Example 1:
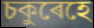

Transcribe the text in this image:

চকুৰেহে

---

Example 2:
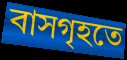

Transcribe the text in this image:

বাসগৃহতে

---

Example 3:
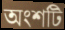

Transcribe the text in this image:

অংশটি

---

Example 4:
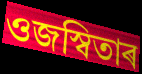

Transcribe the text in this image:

ওজস্বিতাৰ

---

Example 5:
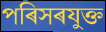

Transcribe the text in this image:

পৰিসৰযুক্ত